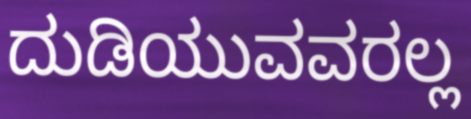
ದುಡಿಯುವವರಲ್ಲ